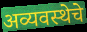
अव्यवस्थेचे